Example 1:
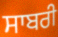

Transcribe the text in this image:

ਸਾਬਰੀ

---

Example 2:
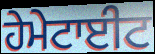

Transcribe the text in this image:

ਹੇਮੇਟਾਈਟ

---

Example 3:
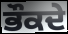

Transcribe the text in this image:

ਭੌਕਦੇ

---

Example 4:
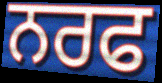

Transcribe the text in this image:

ਨਰਫ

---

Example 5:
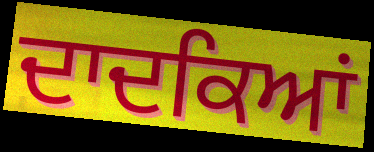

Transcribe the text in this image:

ਦਾਦਕਿਆਂ